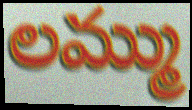
లమ్ము